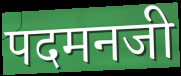
पदमनजी